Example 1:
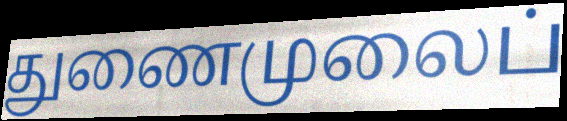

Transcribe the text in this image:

துணைமுலைப்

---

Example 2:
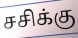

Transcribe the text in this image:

சசிக்கு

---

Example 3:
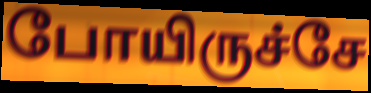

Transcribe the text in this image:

போயிருச்சே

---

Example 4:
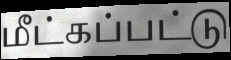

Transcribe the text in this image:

மீட்கப்பட்டு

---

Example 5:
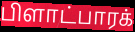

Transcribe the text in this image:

பிளாட்பாரக்